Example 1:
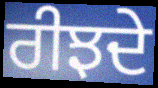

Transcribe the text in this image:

ਰੀਝਦੇ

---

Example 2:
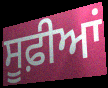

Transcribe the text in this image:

ਸੂਫ਼ੀਆਂ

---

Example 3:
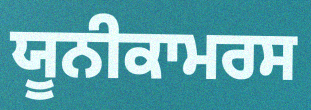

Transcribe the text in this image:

ਯੂਨੀਕਾਮਰਸ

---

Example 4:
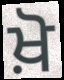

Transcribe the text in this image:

ਖ਼ੋ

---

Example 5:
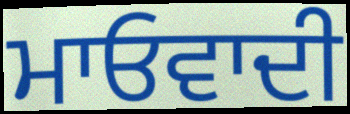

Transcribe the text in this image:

ਮਾਓਵਾਦੀ